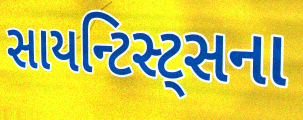
સાયન્ટિસ્ટ્સના